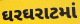
ઘરઘરાટમાં